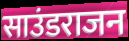
साउंडराजन